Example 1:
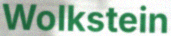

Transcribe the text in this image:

Wolkstein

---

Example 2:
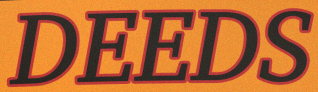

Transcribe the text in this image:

DEEDS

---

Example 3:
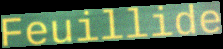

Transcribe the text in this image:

Feuillide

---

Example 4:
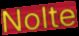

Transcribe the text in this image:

Nolte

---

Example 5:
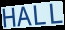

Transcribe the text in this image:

HALL